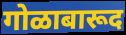
गोळाबारूद